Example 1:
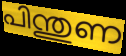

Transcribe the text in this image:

പിന്തുണ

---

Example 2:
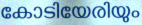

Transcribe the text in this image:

കോടിയേരിയും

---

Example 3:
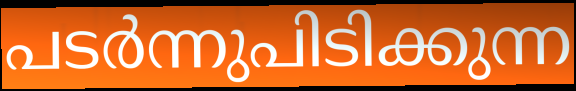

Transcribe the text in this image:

പടർന്നുപിടിക്കുന്ന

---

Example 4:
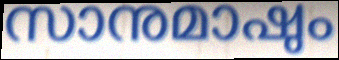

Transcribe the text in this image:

സാനുമാഷും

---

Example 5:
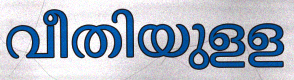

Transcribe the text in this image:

വീതിയുളള